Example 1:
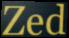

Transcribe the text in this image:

Zed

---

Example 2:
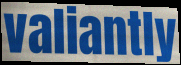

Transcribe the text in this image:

valiantly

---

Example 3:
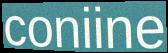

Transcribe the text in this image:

coniine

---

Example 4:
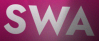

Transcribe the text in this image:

SWA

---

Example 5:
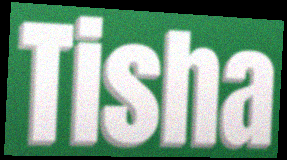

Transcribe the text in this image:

Tisha